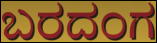
ಬರದಂಗ